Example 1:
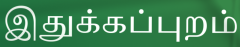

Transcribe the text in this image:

இதுக்கப்புறம்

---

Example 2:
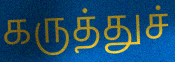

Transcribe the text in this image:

கருத்துச்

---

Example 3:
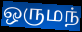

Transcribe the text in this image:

ஒருமந்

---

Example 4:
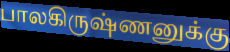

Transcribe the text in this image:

பாலகிருஷ்ணனுக்கு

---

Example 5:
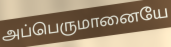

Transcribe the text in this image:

அப்பெருமானையே